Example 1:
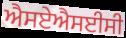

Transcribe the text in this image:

ਐਸਏਐਸਈਸੀ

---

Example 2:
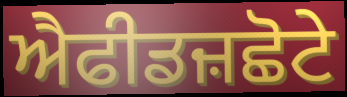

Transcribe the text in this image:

ਐਫੀਡਜ਼ਛੋਟੇ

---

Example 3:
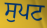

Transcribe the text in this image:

ਸੁਪਟ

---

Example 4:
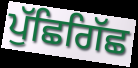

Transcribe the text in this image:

ਪੁੱਛਿਗਿੱਛ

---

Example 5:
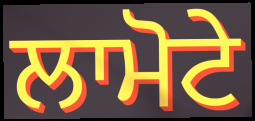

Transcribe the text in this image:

ਲਾਮੋਟੇ